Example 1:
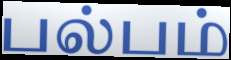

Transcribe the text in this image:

பல்பம்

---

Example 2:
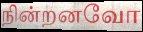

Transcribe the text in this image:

நின்றனவோ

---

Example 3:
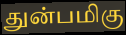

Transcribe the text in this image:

துன்பமிகு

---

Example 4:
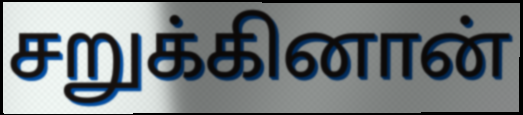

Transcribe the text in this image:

சறுக்கினான்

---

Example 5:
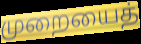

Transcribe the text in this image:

முறையைத்